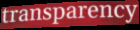
transparency